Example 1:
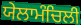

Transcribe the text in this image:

ਯੇਲਾਮੰਚਿਲੀ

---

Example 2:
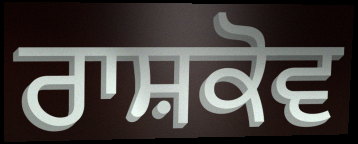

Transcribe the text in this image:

ਰਾਸ਼ਕੋਵ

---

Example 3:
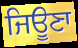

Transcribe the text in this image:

ਜਿਊਣਾ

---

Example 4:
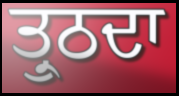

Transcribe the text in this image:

ਤ੍ਰੁਠਦਾ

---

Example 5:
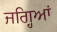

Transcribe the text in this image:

ਜਗ੍ਹਿਆਂ